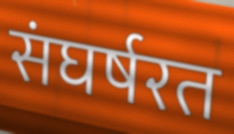
संघर्षरत